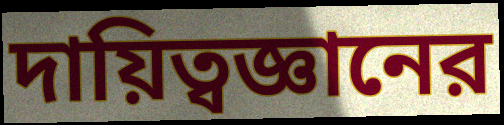
দায়িত্বজ্ঞানের